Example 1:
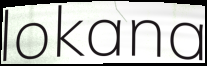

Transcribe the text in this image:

lokana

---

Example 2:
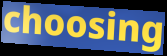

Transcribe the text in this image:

choosing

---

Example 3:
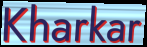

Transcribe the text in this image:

Kharkar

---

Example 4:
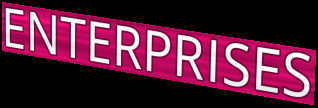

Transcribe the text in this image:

ENTERPRISES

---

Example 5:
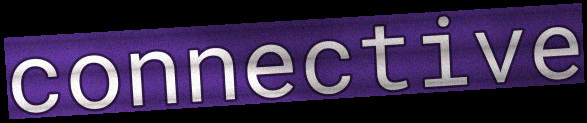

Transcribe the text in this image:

connective